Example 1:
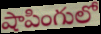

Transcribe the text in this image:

షాపింగులో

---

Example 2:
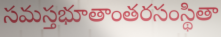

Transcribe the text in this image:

సమస్తభూతాంతరసంస్థితా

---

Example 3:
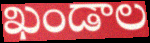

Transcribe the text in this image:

ఖండాల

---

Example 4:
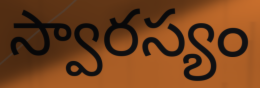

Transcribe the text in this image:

స్వారస్యం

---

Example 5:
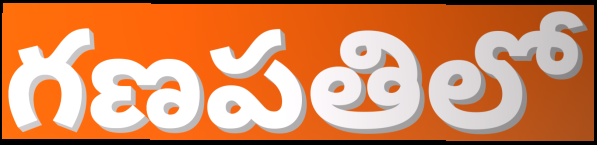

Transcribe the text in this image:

గణపతిలో